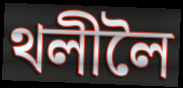
থলীলৈ